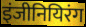
इंजीनियिरंग